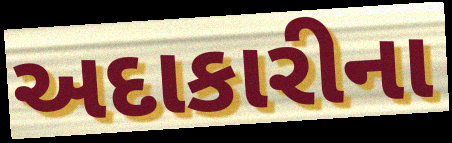
અદાકારીના